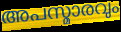
അപസ്മാരവും